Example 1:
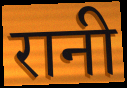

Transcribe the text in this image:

रानी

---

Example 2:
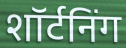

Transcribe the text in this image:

शॉर्टनिंग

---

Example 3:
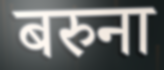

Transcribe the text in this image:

बरुना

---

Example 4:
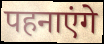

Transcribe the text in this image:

पहनाएंगे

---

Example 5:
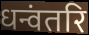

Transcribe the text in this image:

धन्वंतरि